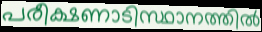
പരീക്ഷണാടിസ്ഥാനത്തിൽ